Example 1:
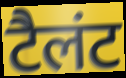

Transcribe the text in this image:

टैलंट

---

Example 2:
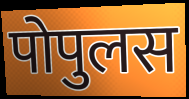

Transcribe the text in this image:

पोपुलस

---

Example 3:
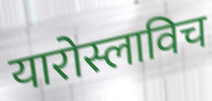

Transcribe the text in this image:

यारोस्लाविच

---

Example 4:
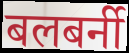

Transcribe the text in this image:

बलबर्नी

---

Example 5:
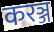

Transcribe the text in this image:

करञ्ज